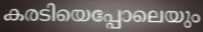
കരടിയെപ്പോലെയും